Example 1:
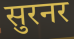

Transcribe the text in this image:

सुरनर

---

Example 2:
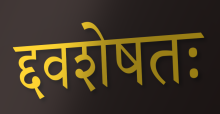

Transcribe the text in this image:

द्दवशेषतः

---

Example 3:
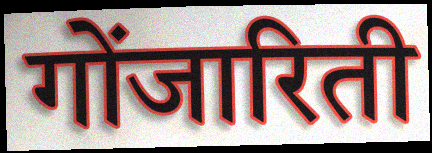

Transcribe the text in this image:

गोंजारिती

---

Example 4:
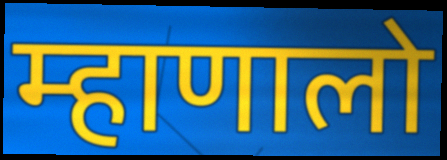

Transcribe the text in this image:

म्हाणालो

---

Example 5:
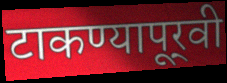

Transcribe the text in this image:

टाकण्यापूर्वी